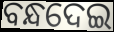
ବନ୍ଧଦେଇ